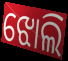
ଝୋଲି